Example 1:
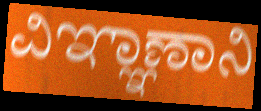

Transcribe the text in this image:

ವಿಞ್ಞಾಣಾನಿ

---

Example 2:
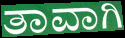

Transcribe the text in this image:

ತಾವಾಗಿ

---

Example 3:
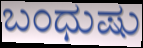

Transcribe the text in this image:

ಬಂಧುಷು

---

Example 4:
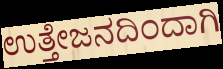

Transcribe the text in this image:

ಉತ್ತೇಜನದಿಂದಾಗಿ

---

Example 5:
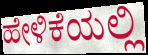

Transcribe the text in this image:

ಹೇಳಿಕೆಯಲ್ಲಿ